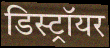
डिस्‍ट्रॉयर